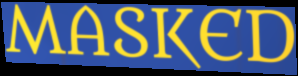
MASKED